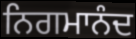
ਨਿਗਮਾਨੰਦ